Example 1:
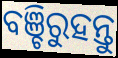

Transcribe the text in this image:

ବଞ୍ଚିରୁହନ୍ତୁ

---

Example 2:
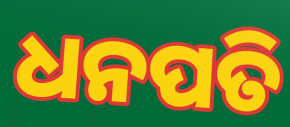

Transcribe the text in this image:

ଧନପତି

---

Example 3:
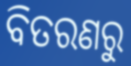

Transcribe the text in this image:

ବିତରଣରୁ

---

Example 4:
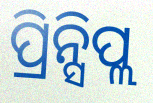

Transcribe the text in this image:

ପ୍ରିନ୍ସିପ୍ଲ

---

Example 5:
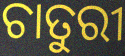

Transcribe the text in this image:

ଚାତୁରୀ